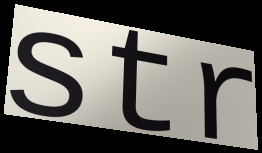
str